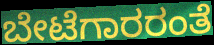
ಬೇಟೆಗಾರರಂತೆ